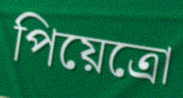
পিয়েত্রো